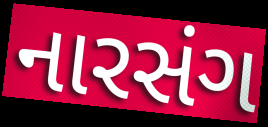
નારસંગ